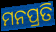
ମନପ୍ରତି